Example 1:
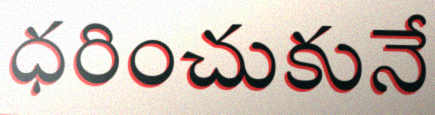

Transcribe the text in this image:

ధరించుకునే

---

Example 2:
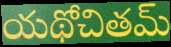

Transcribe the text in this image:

యథోచితమ్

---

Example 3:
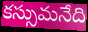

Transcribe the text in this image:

కస్సుమనేది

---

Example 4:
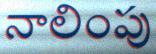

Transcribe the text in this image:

నాలింపు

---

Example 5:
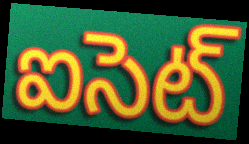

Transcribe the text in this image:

ఐసెట్